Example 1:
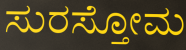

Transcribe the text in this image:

ಸುರಸ್ತೋಮ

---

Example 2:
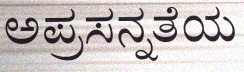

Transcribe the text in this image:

ಅಪ್ರಸನ್ನತೆಯ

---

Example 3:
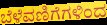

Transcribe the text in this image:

ಬೆಳೆವಣಿಗೆಗಳಿಂದ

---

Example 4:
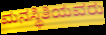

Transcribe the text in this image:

ಮನಸ್ಥಿತಿಯವರು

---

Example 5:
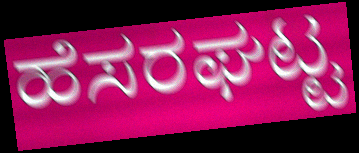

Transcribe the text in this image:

ಹೆಸರಘಟ್ಟ